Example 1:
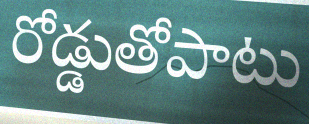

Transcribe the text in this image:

రోడ్డుతోపాటు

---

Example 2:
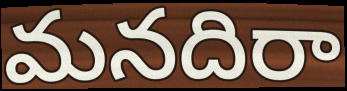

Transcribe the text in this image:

మనదిరా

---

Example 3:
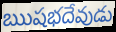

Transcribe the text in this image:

ఋషభదేవుడు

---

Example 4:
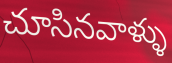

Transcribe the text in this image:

చూసినవాళ్ళు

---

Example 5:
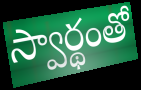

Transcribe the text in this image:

స్వార్థంతో